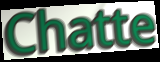
Chatte